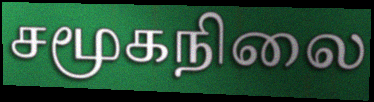
சமூகநிலை